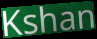
Kshan